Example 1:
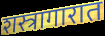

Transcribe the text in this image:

शस्त्रागारात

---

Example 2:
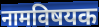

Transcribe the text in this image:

नामविषयक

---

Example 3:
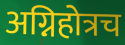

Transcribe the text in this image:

अग्निहोत्रच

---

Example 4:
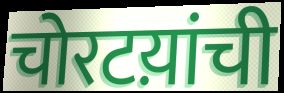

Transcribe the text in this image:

चोरटय़ांची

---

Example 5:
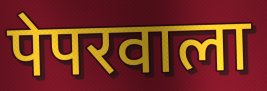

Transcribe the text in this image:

पेपरवाला